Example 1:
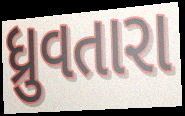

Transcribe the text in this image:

ધ્રુવતારા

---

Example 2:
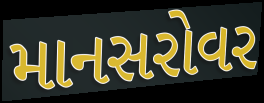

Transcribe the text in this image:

માનસરોવર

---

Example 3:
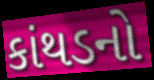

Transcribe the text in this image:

કાંથડનો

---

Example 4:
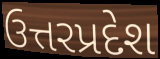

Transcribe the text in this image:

ઉત્તરપ્રદેશ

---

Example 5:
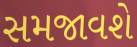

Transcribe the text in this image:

સમજાવશે